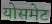
योसमेट